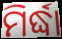
ମିର୍ଦ୍ଧା